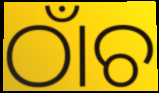
ଠାଁଚ